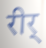
रीर्